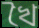
খৈ